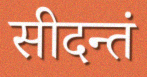
सीदन्तं